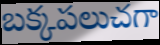
బక్కపలుచగా